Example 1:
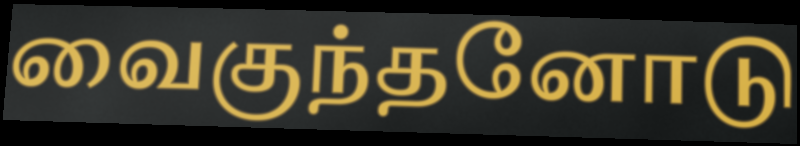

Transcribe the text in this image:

வைகுந்தனோடு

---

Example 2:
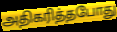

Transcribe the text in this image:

அதிகரித்தபோது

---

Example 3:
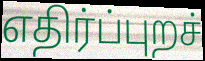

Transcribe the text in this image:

எதிர்ப்புறச்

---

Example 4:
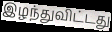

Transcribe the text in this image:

இழந்துவிட்டது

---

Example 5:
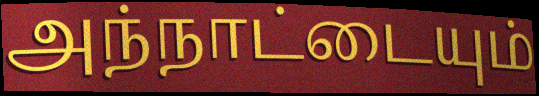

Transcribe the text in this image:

அந்நாட்டையும்